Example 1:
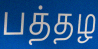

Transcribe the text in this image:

பத்தழ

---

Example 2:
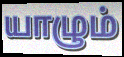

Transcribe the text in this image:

யாழும்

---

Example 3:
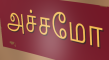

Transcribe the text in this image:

அச்சமோ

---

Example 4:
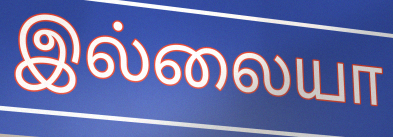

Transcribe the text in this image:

இல்லையா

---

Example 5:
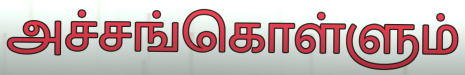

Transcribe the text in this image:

அச்சங்கொள்ளும்